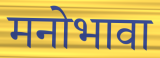
मनोभावा